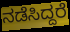
ನಡೆಸಿದ್ದರೆ